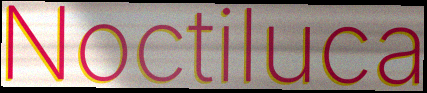
Noctiluca